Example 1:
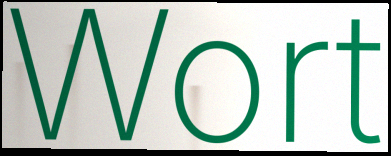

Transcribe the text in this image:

Wort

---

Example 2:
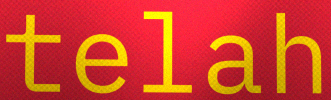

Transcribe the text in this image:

telah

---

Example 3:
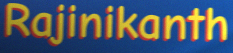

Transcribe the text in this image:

Rajinikanth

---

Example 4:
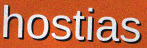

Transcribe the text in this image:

hostias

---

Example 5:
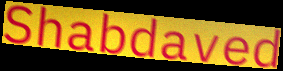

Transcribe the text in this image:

Shabdaved